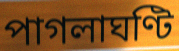
পাগলাঘণ্টি